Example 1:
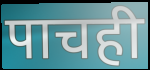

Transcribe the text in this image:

पाचही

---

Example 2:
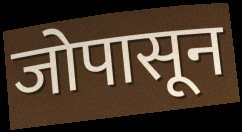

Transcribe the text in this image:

जोपासून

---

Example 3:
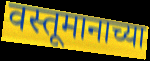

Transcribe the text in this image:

वस्तूमानाच्या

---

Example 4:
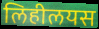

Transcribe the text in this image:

लिहीलयस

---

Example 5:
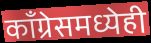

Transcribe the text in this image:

काँग्रेसमध्येही